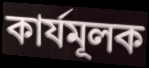
কার্যমূলক